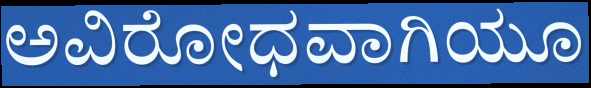
ಅವಿರೋಧವಾಗಿಯೂ